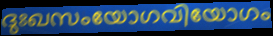
ദുഃഖസംയോഗവിയോഗം